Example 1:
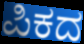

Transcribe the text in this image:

ಪಿಕದ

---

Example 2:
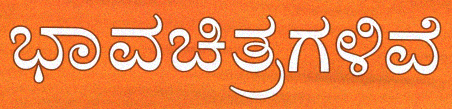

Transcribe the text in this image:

ಭಾವಚಿತ್ರಗಳಿವೆ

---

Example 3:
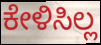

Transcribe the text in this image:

ಕೇಳಿಸಿಲ್ಲ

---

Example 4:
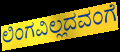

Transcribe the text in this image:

ಲಿಂಗವಿಲ್ಲದವಂಗೆ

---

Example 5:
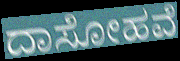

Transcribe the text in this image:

ದಾಸೋಹವೆ